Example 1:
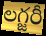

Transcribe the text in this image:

లగ్జరీ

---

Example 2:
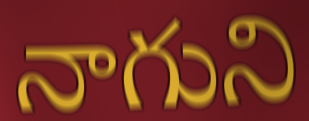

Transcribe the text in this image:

నాగుని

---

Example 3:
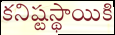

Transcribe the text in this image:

కనిష్టస్థాయికి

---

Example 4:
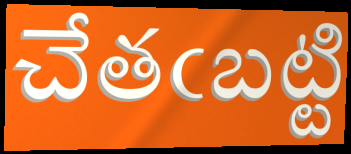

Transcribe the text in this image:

చేతఁబట్టి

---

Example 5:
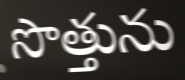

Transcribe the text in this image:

సొత్తును